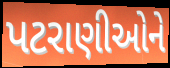
પટરાણીઓને